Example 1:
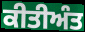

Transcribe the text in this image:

ਕੀਤੀਅੰਤ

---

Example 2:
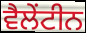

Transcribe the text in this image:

ਵੈਲੇਂਟੀਨ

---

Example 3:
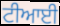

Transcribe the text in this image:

ਟੀਆਈ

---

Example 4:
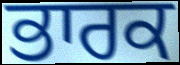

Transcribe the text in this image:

ਭਾਰਕ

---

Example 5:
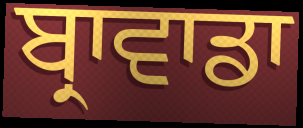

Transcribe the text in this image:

ਬ੍ਰਾਵਾਡਾ